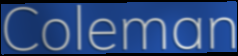
Coleman